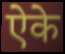
ऐके